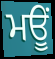
ਮਊਂ